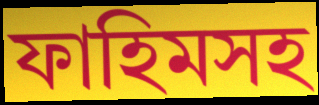
ফাহিমসহ